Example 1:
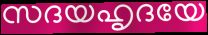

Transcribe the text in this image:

സദയഹൃദയേ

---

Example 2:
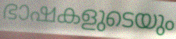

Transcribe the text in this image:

ഭാഷകളുടെയും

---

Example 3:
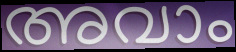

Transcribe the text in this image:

അവാം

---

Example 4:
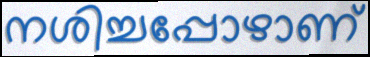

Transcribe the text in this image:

നശിച്ചപ്പോഴാണ്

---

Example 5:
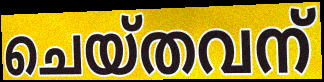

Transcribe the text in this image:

ചെയ്തവന്